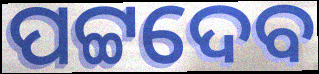
ପଟ୍ଟଦେବ